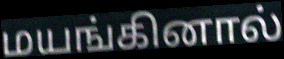
மயங்கினால்